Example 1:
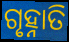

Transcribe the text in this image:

ଗୃହ୍ନାତି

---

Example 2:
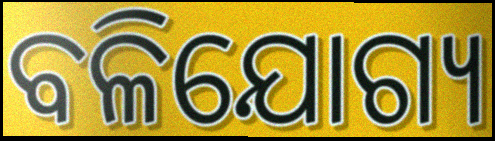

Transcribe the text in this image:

ବଳିଯୋଗ୍ୟ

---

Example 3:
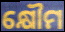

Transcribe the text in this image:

କ୍ଷୌମ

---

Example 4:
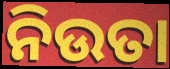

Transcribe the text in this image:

ନିଉତା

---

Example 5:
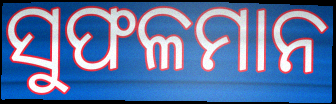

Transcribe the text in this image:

ସୁଫଳମାନ